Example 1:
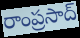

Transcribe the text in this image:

రాంప్రసాద్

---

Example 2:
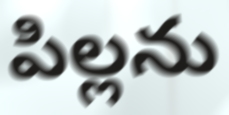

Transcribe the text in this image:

పిల్లను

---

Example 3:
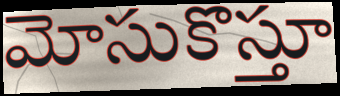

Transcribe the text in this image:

మోసుకొస్తూ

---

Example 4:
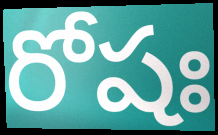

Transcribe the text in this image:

రోషః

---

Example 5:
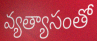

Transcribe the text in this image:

వ్యత్యాసంతో